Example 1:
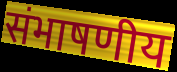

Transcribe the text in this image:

संभाषणीय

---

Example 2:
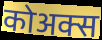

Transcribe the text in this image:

कोअक्स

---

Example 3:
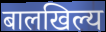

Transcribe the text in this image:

बालखिल्य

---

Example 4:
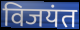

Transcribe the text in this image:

विजयंत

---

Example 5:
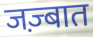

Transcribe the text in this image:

जज़्बात